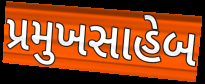
પ્રમુખસાહેબ